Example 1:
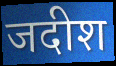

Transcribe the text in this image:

जदीश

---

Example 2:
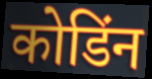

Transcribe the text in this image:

कोडिंन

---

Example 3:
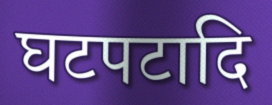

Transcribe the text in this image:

घटपटादि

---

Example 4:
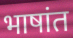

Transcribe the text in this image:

भाषांत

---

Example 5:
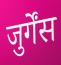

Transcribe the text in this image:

जुर्गेंस